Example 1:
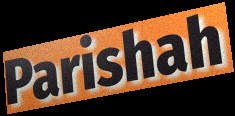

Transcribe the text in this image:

Parishah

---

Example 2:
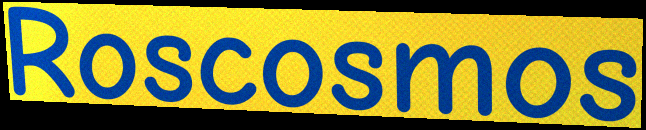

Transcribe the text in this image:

Roscosmos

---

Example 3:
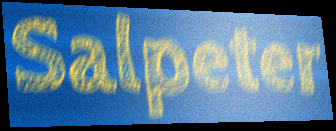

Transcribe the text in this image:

Salpeter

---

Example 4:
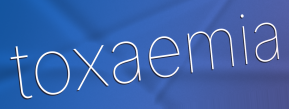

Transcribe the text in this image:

toxaemia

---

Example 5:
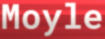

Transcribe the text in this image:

Moyle